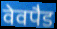
वेवपैड